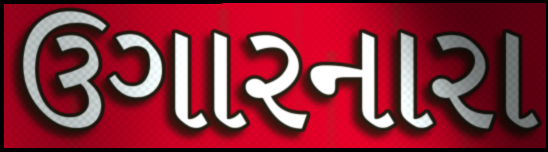
ઉગારનારા